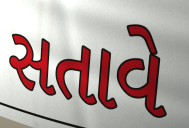
સતાવે